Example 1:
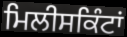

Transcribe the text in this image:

ਮਿਲੀਸਕਿੰਟਾਂ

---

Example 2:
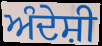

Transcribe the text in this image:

ਅੰਦੇਸ਼ੀ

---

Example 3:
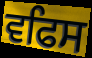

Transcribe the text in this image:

ਵਫਿਸ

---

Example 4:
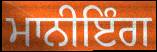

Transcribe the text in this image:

ਮਾਨੀਇੰਗ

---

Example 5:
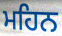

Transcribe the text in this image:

ਮਹਿਨ